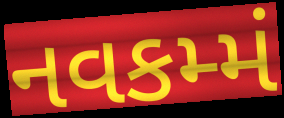
નવકમ્મં